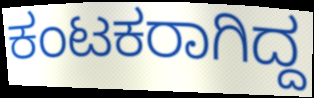
ಕಂಟಕರಾಗಿದ್ದ